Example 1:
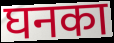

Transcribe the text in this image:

घनका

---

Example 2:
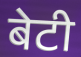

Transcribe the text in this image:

बेटी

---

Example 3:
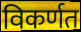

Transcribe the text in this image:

विकर्णत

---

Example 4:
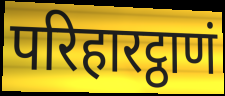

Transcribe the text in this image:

परिहारट्ठाणं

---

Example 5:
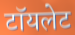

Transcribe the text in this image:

टॉयलेट